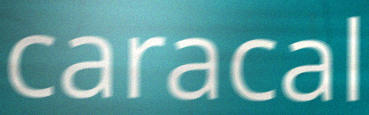
caracal